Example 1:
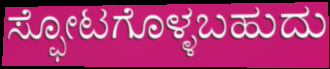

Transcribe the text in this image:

ಸ್ಫೋಟಗೊಳ್ಳಬಹುದು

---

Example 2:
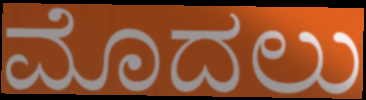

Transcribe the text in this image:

ಮೊದಲು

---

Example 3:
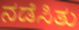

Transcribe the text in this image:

ನಡೆಸಿತು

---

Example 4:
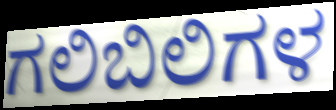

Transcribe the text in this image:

ಗಲಿಬಿಲಿಗಳ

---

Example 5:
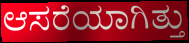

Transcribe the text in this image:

ಆಸರೆಯಾಗಿತ್ತು